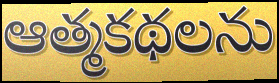
ఆత్మకథలను